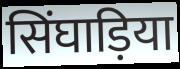
सिंघाड़िया